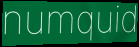
numquid